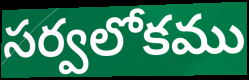
సర్వలోకము